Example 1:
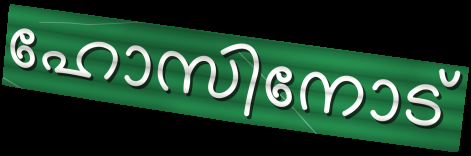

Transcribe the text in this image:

ഹോസിനോട്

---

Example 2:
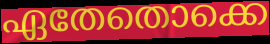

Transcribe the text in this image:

ഏതേതൊക്കെ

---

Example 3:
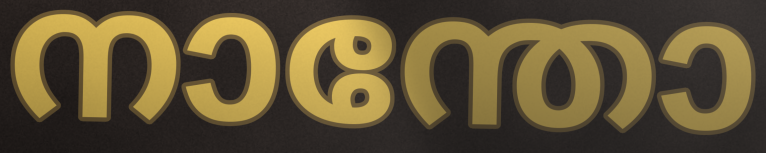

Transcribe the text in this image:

നാന്തോ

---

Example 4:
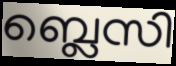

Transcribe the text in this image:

ബ്ലെസി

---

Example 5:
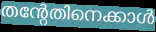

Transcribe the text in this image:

തന്റേതിനെക്കാൾ